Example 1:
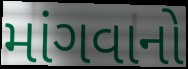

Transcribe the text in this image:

માંગવાનો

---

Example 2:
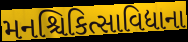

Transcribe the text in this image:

મનશ્ચિકિત્સાવિદ્યાના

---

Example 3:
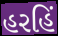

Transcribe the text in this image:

હરહિં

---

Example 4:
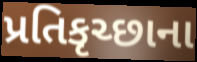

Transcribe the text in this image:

પ્રતિકૃચ્છાના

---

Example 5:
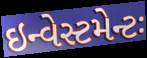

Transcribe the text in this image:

ઇન્વેસ્ટમેન્ટઃ